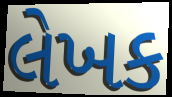
લેખક